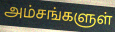
அம்சங்களுள்